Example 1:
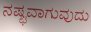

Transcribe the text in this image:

ನಷ್ಟವಾಗುವುದು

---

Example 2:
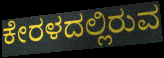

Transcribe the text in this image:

ಕೇರಳದಲ್ಲಿರುವ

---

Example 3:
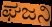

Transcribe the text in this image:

ಘಜನಿ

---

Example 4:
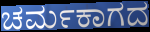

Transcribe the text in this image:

ಚರ್ಮಕಾಗದ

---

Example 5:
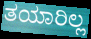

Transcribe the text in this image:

ತಯಾರಿಲ್ಲ